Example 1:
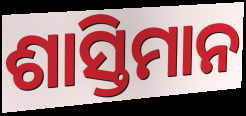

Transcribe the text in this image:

ଶାସ୍ତିମାନ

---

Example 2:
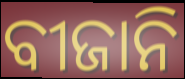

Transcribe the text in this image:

ବୀଜାନି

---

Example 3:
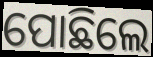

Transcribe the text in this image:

ପୋଛିଲେ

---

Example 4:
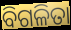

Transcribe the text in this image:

ବିଗଳିତା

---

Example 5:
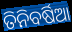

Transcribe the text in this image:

ତିନିବର୍ଷିଆ